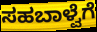
ಸಹಬಾಳ್ವೆಗೆ